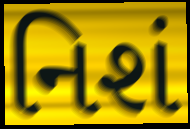
નિશં